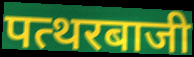
पत्थरबाजी